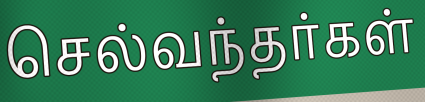
செல்வந்தர்கள்